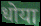
धोया